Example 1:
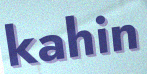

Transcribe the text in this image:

kahin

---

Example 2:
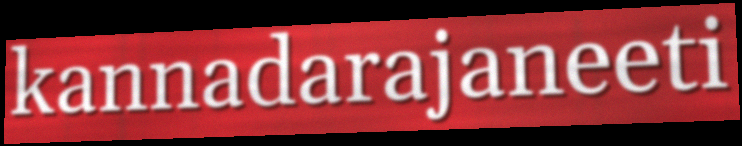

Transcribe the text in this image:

kannadarajaneeti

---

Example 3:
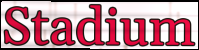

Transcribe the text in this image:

Stadium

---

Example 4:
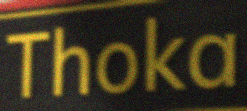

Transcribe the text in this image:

Thoka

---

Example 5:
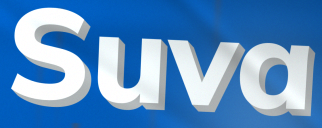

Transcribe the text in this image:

Suva